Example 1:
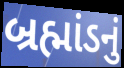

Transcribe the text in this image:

બ્રહ્માંડનું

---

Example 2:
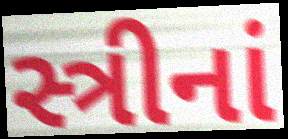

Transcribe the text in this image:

સ્ત્રીનાં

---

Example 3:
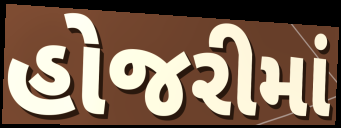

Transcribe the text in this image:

હોજરીમાં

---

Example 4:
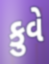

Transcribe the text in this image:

કુવે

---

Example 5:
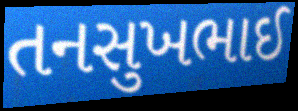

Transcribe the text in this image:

તનસુખભાઈ